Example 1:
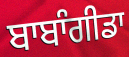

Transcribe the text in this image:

ਬਾਬਾੰਗੀਡਾ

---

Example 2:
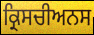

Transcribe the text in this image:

ਕ੍ਰਿਸਚੀਅਨਸ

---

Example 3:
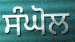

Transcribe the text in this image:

ਸੰਘੋਲ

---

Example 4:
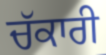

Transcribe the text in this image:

ਚੱਕਾਰੀ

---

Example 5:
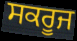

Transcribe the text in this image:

ਸਕਰੂਜ